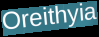
Oreithyia